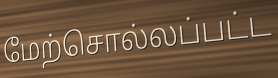
மேற்சொல்லப்பட்ட